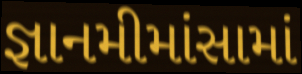
જ્ઞાનમીમાંસામાં